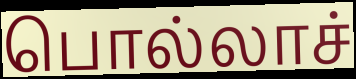
பொல்லாச்